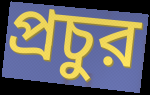
প্রচুর